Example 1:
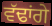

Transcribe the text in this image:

ਵੱਢਾਂਗੇ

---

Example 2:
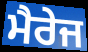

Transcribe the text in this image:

ਮੈਰੇਜ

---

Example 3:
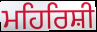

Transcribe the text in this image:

ਮਹਿਰਿਸ਼ੀ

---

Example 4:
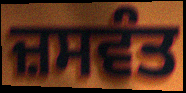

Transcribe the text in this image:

ਜ਼ਸਵੰਤ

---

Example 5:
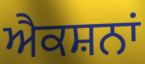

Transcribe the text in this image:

ਐਕਸ਼ਨਾਂ